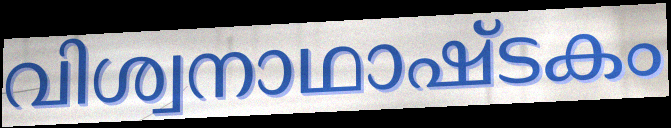
വിശ്വനാഥാഷ്ടകം